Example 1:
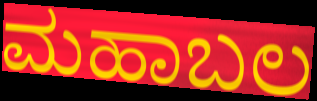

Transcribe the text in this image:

ಮಹಾಬಲ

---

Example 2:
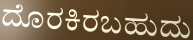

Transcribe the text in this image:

ದೊರಕಿರಬಹುದು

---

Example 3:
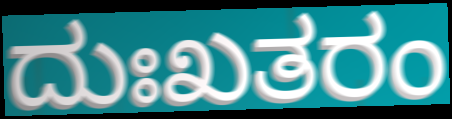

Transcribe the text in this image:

ದುಃಖತರಂ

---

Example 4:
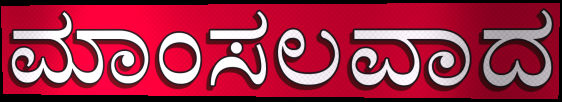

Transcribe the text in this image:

ಮಾಂಸಲವಾದ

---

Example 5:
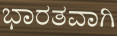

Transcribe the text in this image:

ಭಾರತವಾಗಿ